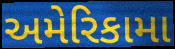
અમેરિકામા